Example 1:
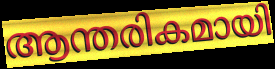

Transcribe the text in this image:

ആന്തരികമായി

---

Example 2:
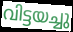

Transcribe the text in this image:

വിട്ടയച്ചു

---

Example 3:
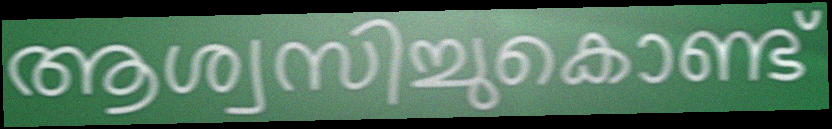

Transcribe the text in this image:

ആശ്വസിച്ചുകൊണ്ട്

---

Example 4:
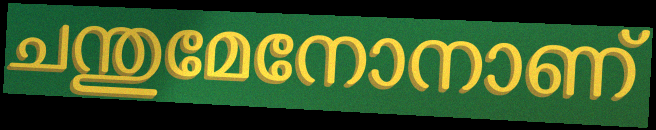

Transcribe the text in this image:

ചന്തുമേനോനാണ്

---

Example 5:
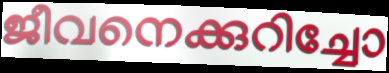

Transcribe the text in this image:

ജീവനെക്കുറിച്ചോ